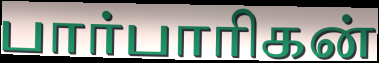
பார்பாரிகன்